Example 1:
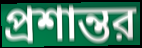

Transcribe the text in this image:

প্রশান্তর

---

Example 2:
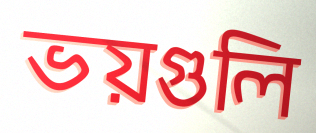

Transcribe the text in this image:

ভয়গুলি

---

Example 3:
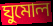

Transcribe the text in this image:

ঘুমোল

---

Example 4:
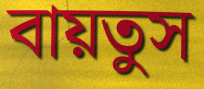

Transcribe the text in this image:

বায়তুস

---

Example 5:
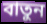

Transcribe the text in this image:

বাতুন